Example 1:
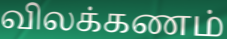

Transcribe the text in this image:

விலக்கணம்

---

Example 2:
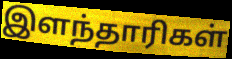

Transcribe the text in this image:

இளந்தாரிகள்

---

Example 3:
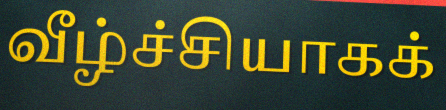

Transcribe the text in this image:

வீழ்ச்சியாகக்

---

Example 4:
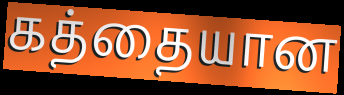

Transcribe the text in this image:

கத்தையான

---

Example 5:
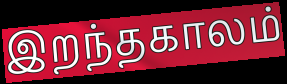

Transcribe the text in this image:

இறந்தகாலம்